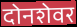
दोनशेवर